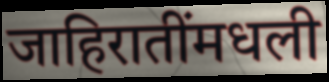
जाहिरातींमधली